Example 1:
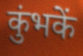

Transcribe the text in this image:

कुंभकें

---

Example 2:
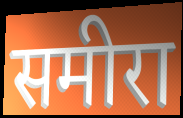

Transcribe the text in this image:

समीरा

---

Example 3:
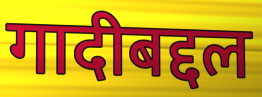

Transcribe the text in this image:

गादीबद्दल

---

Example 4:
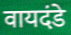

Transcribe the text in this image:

वायदंडे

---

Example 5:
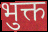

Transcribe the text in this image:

भुक्त